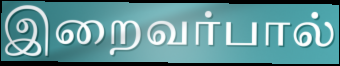
இறைவர்பால்